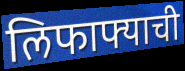
लिफाफ्याची